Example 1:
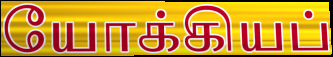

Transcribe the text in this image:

யோக்கியப்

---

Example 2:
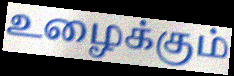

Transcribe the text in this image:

உழைக்கும்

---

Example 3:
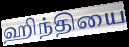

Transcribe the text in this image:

ஹிந்தியை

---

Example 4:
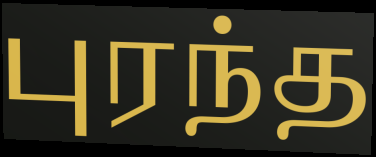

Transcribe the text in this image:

புரந்த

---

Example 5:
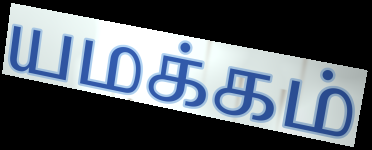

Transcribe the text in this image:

யமக்கம்